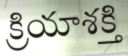
క్రియాశక్తి